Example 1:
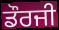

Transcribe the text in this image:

ਡੌਰਜੀ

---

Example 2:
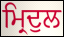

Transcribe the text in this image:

ਮ੍ਰਿਦੁਲ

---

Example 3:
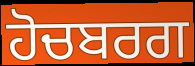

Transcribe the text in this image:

ਹੋਚਬਰਗ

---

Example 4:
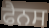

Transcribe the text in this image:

ਫੈਨਸ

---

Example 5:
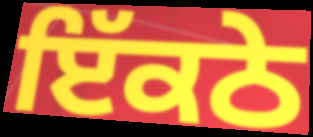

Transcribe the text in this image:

ਇੱਕਠੇ